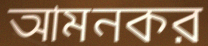
আমনকর